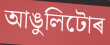
আঙুলিটোৰ